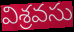
విశ్రవసు